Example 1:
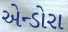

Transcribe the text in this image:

એન્ડોરા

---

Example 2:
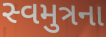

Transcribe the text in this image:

સ્વમુત્રના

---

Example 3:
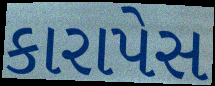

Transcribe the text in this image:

કારાપેસ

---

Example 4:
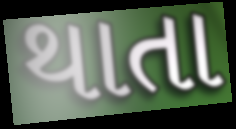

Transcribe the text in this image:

થાતા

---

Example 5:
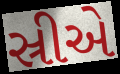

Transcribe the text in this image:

સ્રીએ